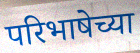
परिभाषेच्या